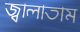
জ্বালাতাম